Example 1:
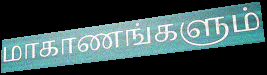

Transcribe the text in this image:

மாகாணங்களும்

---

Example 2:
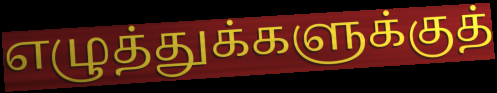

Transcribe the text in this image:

எழுத்துக்களுக்குத்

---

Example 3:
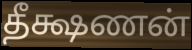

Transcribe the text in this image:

தீக்ஷணன்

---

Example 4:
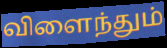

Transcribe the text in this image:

விளைந்தும்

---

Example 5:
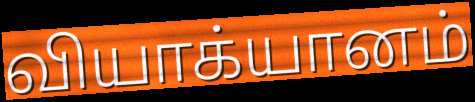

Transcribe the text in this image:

வியாக்யானம்